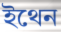
ইথেন